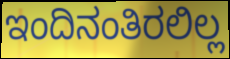
ಇಂದಿನಂತಿರಲಿಲ್ಲ